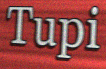
Tupi